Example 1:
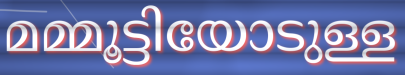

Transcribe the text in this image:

മമ്മൂട്ടിയോടുള്ള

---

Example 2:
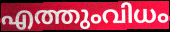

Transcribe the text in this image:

എത്തുംവിധം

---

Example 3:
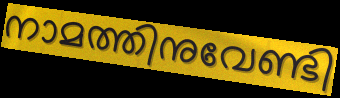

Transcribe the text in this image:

നാമത്തിനുവേണ്ടി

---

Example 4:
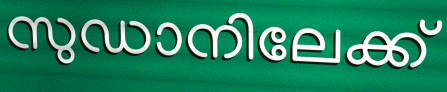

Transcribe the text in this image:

സുഡാനിലേക്ക്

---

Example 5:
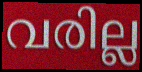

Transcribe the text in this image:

വരില്ല